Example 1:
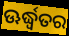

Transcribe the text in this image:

ଊର୍ଦ୍ଧ୍ଵତର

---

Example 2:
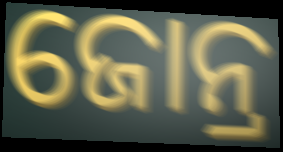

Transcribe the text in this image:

ଜୋନ୍ର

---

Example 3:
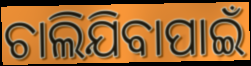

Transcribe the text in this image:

ଚାଲିଯିବାପାଇଁ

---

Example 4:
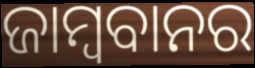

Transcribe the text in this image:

ଜାମ୍ବବାନର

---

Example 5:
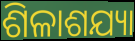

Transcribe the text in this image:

ଶିଳାଶଯ୍ୟା